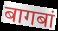
बागबां